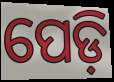
ପେଡ଼ି